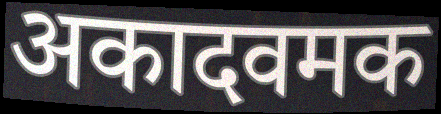
अकादवमक